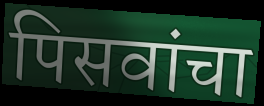
पिसवांचा